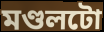
মণ্ডলটো